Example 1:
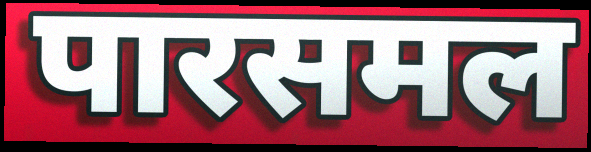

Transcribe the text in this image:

पारसमल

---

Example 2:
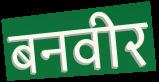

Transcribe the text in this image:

बनवीर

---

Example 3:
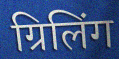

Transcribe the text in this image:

ग्रिलिंग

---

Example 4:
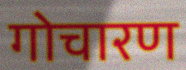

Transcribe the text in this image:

गोचारण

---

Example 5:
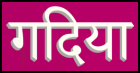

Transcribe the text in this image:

गदिया